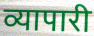
व्यापारी